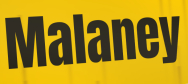
Malaney